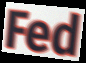
Fed